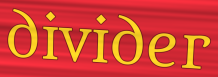
divider